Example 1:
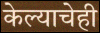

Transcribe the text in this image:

केल्याचेही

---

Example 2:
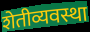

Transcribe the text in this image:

शेतीव्यवस्था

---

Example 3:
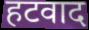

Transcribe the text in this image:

हटवाद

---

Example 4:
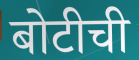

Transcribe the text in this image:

बोटीची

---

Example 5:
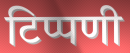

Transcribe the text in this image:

टिप्पणी